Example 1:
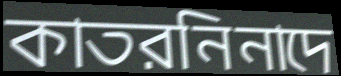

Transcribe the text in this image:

কাতরনিনাদে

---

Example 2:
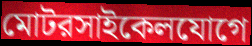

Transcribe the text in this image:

মোটরসাইকেলযোগে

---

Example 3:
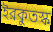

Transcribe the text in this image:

ইরকুতস্ক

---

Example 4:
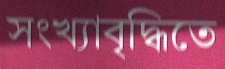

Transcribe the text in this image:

সংখ্যাবৃদ্ধিতে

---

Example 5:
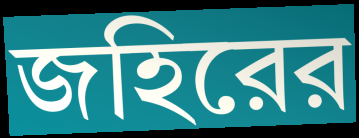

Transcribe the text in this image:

জহিরের